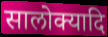
सालोक्यादि